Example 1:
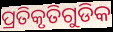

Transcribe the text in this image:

ପ୍ରତିକୃତିଗୁଡିକ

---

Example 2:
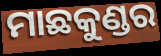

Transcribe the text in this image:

ମାଛକୁଣ୍ଡର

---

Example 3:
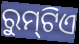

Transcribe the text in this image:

ରୁମ୍‌ଟିଏ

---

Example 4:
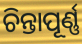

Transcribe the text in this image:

ଚିନ୍ତାପୂର୍ଣ୍ଣ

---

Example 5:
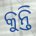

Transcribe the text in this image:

କୁନ୍ତି